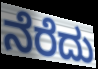
ನೆರೆದು